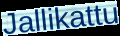
Jallikattu